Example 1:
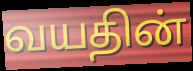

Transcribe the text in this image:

வயதின்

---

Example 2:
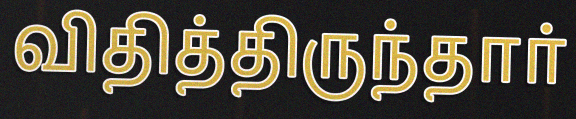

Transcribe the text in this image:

விதித்திருந்தார்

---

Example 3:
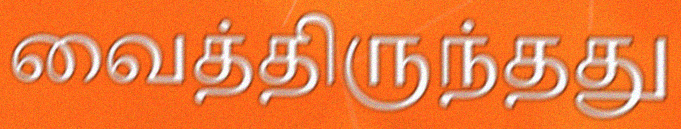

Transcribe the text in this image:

வைத்திருந்தது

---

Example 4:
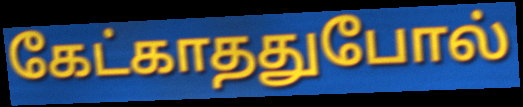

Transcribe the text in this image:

கேட்காததுபோல்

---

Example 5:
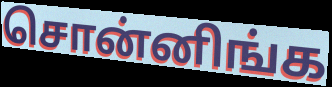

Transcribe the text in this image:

சொன்னிங்க